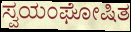
ಸ್ವಯಂಘೋಷಿತ